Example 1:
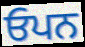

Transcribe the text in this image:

ਓਪਨ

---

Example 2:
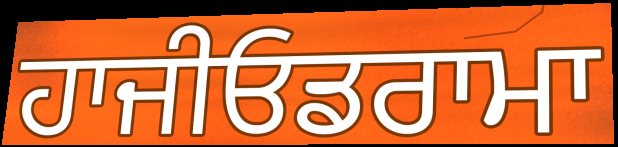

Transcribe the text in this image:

ਹਾਜੀਓਡਰਾਮਾ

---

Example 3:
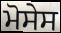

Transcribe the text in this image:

ਮੋਸੇਸ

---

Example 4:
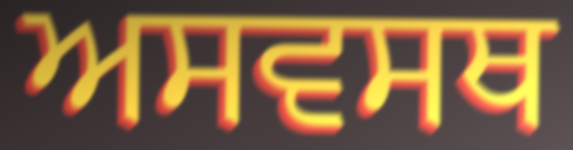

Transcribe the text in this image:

ਅਸਵਸਥ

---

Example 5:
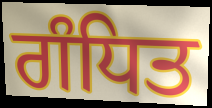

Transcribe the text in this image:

ਗੰਧਿਤ